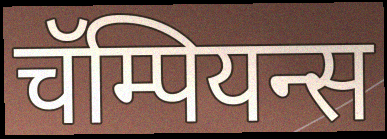
चॅम्पियन्स